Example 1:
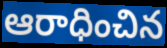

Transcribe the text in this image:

ఆరాధించిన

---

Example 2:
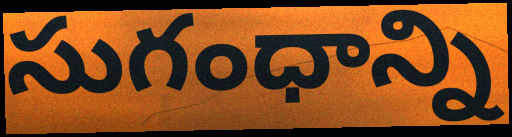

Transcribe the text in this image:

సుగంధాన్ని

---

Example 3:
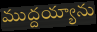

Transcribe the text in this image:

ముద్దయ్యాను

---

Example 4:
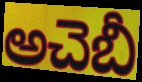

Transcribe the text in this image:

అచెబీ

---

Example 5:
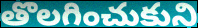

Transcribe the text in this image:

తొలగించుకుని